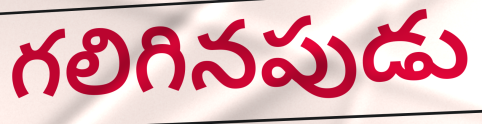
గలిగినపుడు